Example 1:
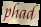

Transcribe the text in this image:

phad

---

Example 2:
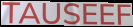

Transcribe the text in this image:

TAUSEEF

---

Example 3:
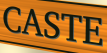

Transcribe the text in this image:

CASTE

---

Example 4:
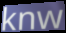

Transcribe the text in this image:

knw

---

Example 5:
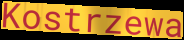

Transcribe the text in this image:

Kostrzewa